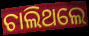
ଚାଲିଥଲେ